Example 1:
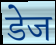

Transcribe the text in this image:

डेज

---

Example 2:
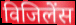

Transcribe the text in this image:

विजिलेंस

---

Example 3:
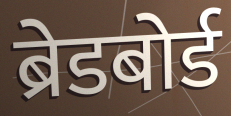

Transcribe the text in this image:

ब्रेडबोर्ड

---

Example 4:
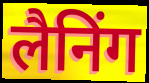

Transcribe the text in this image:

लैनिंग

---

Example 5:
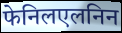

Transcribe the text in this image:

फेनिलएलनिन